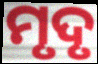
ମୃଦୃ